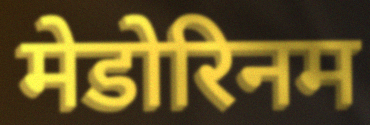
मेडोरिनम